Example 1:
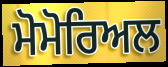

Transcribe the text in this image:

ਮੋਮੋਰਿਅਲ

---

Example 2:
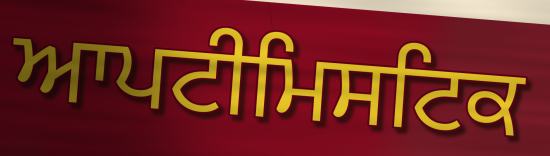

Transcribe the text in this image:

ਆਪਟੀਮਿਸਟਿਕ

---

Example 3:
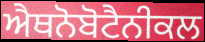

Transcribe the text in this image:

ਐਥਨੋਬੋਟੈਨੀਕਲ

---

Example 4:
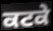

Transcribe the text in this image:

ਕਟਕੇ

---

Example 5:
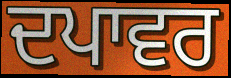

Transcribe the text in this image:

ਦਪਾਵਰ